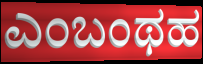
ಎಂಬಂಥಹ